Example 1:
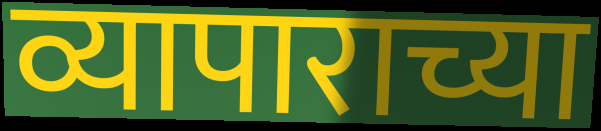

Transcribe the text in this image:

व्यापाराच्या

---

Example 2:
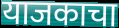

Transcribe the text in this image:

याजकाचा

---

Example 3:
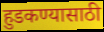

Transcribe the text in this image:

हुडकण्यासाठी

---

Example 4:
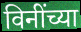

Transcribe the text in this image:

विनींच्या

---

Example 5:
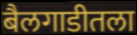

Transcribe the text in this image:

बैलगाडीतला